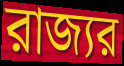
রাজ্যর